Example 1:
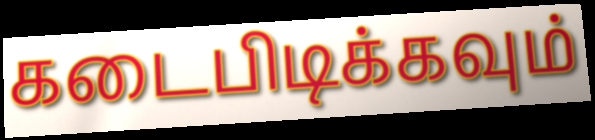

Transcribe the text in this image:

கடைபிடிக்கவும்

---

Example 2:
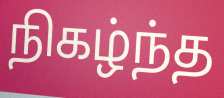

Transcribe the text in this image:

நிகழ்ந்த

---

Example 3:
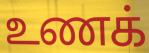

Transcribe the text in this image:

உணக்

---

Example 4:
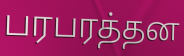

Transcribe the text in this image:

பரபரத்தன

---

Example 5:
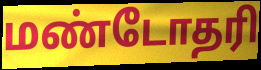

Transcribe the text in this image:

மண்டோதரி